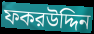
ফকরউদ্দিন